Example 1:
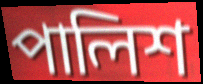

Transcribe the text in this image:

পালিশ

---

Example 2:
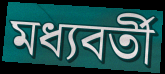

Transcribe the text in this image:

মধ্যবৰ্তী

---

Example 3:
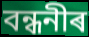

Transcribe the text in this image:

বন্ধনীৰ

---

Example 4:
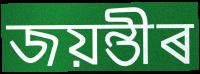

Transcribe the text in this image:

জয়ন্তীৰ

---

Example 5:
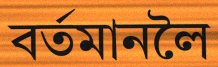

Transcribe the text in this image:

বৰ্তমানলৈ